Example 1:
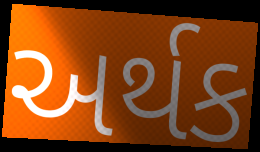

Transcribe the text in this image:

અર્થક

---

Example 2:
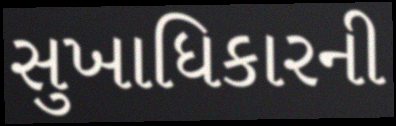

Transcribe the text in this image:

સુખાધિકારની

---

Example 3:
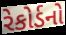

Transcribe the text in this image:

રેકોર્ડનો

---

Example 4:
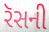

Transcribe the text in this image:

રૅસની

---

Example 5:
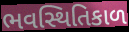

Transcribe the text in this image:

ભવસ્થિતિકાળ